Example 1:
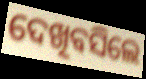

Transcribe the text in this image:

ଦେଖିବସିଲେ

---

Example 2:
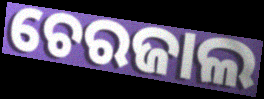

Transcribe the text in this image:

ଚେରଜାଲ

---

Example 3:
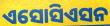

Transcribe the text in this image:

ଏସୋସିଏସନ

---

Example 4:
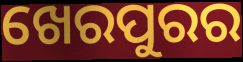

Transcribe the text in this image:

ଖେରପୁରର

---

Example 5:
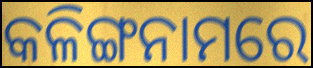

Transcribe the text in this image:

କଳିଙ୍ଗନାମରେ